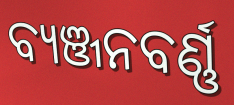
ବ୍ୟଞ୍ଜନବର୍ଣ୍ଣ